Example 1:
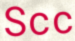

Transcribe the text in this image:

Scc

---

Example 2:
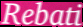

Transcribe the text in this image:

Rebati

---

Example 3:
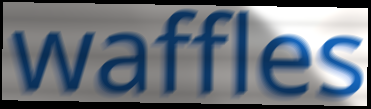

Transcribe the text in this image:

waffles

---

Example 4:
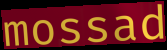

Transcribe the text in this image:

mossad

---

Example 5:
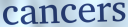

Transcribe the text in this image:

cancers